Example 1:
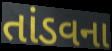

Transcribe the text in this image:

તાંડવના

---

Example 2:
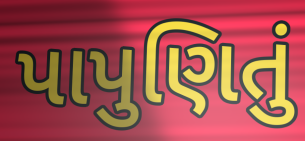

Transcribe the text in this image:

પાપુણિતું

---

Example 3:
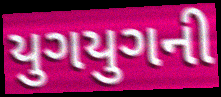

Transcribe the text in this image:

યુગયુગની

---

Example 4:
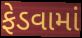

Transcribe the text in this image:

ફેડવામાં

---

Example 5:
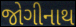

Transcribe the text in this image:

જોગીનાથ